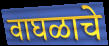
वाघळाचे